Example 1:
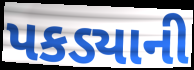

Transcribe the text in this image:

પકડ્યાની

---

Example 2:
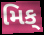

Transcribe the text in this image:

મિક્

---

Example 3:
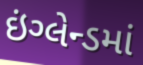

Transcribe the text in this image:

ઇંગ્લેન્ડમાં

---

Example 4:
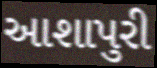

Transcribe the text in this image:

આશાપુરી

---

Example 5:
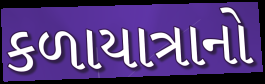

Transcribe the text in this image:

કળાયાત્રાનો